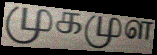
முகமுள